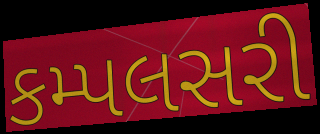
કમ્પલસરી